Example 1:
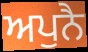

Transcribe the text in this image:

ਅਪੁਨੈ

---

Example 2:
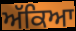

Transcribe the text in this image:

ਅੱਕਿਆ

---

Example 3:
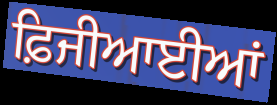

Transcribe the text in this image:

ਫ਼ਿਜੀਆਈਆਂ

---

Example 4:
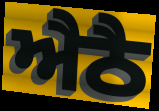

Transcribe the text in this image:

ਐਠੈ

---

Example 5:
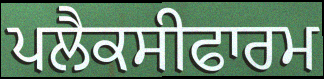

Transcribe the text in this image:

ਪਲੈਕਸੀਫਾਰਮ